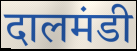
दालमंडी